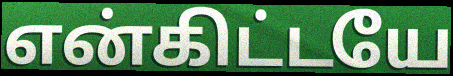
என்கிட்டயே